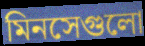
মিনসেগুলো